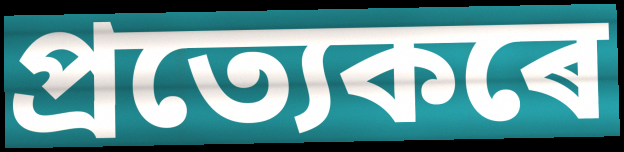
প্ৰত্যেকৰে